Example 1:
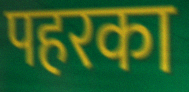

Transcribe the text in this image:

पहरका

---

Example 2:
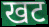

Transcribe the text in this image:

खट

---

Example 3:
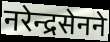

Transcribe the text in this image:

नरेन्द्रसेनने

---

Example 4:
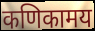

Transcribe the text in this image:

कणिकामय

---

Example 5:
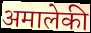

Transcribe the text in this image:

अमालेकी